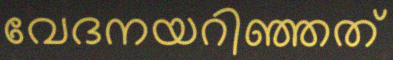
വേദനയറിഞ്ഞത്